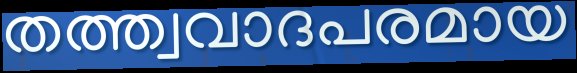
തത്ത്വവാദപരമായ